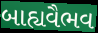
બાહ્યવૈભવ